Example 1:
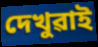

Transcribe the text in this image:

দেখুৱাই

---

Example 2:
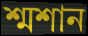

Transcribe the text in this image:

শ্মশান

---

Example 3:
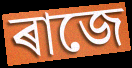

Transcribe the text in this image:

ৰাজে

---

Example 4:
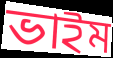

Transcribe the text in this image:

ভাইম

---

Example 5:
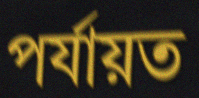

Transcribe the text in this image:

পৰ্যায়ত